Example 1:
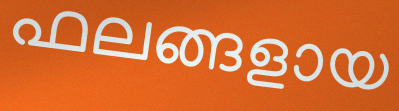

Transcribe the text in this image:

ഫലങ്ങളായ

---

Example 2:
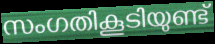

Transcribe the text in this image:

സംഗതികൂടിയുണ്ട്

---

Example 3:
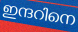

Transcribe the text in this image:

ഇന്ദറിനെ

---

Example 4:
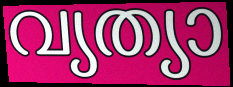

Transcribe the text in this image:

വ്യത്യാ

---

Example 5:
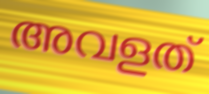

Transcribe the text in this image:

അവളത്